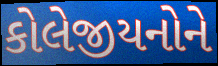
કોલેજીયનોને